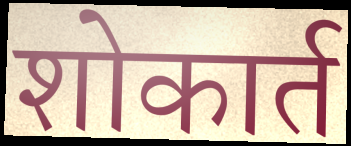
शोकार्त